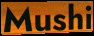
Mushi